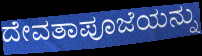
ದೇವತಾಪೂಜೆಯನ್ನು